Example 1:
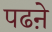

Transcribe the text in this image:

पढऩे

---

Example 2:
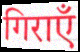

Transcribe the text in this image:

गिराएँ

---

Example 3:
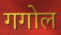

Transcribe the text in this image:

गगोल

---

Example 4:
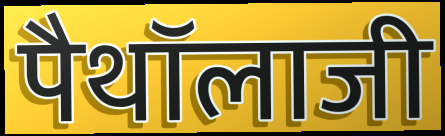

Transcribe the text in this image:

पैथॉलाजी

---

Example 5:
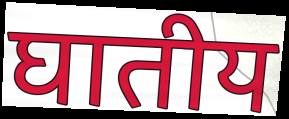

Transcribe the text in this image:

घातीय